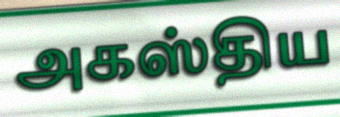
அகஸ்திய